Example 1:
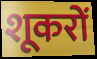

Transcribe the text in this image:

शूकरों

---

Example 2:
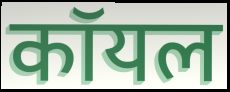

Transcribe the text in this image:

कॉयल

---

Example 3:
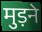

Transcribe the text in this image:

मुड़ने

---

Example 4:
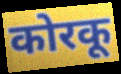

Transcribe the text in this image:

कोरकू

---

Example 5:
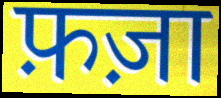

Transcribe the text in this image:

फ़ज़ा